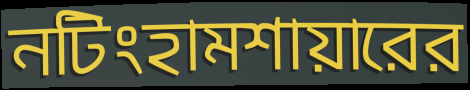
নটিংহামশায়ারের